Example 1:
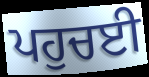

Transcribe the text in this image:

ਪਹੁਚਈ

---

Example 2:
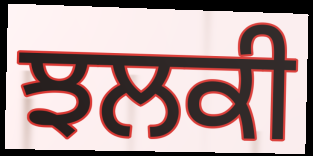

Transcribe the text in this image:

ਝਲਕੀ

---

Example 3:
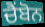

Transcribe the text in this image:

ਚੈਂਬੋਨ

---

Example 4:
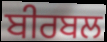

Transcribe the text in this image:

ਬੀਰਬਲ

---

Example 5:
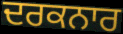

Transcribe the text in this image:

ਦਰਕਨਾਰ